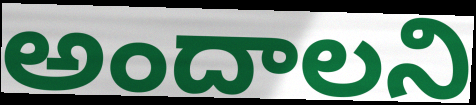
అందాలని